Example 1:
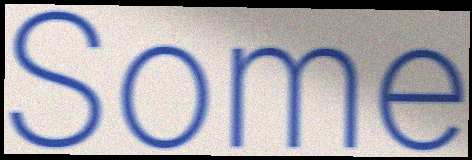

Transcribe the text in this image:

Some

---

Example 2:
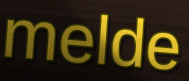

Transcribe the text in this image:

melde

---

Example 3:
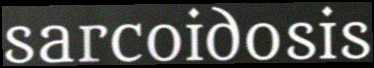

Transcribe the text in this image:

sarcoidosis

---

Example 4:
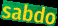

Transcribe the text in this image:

sabdo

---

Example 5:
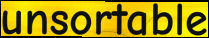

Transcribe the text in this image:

unsortable